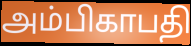
அம்பிகாபதி